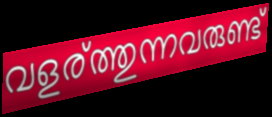
വളര്ത്തുന്നവരുണ്ട്